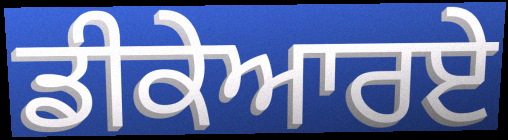
ਡੀਕੇਆਰਏ